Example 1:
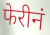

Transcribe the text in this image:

फेरीनं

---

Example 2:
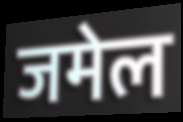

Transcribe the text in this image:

जमेल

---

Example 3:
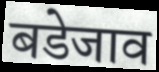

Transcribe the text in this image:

बडेजाव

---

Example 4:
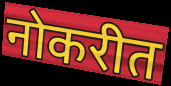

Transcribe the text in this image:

नोकरीत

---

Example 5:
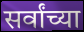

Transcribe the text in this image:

सर्वांच्या